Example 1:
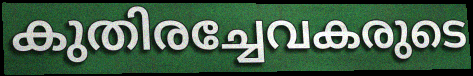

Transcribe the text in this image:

കുതിരച്ചേവകരുടെ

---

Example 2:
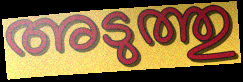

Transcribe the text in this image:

അടുത്തു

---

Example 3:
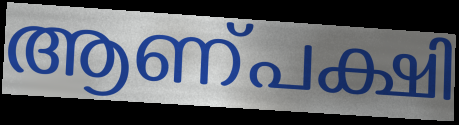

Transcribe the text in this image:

ആണ്പക്ഷി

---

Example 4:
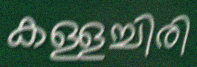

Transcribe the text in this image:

കള്ളച്ചിരി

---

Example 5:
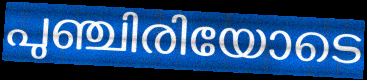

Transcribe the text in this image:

പുഞ്ചിരിയോടെ